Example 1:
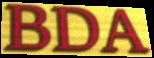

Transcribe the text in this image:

BDA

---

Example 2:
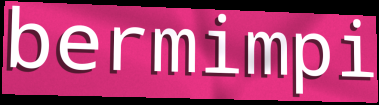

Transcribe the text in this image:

bermimpi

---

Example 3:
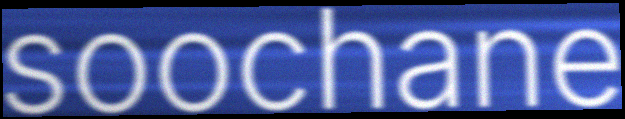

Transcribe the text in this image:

soochane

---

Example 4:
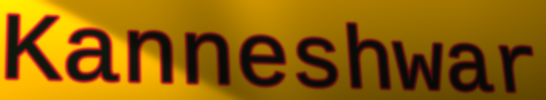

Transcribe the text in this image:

Kanneshwar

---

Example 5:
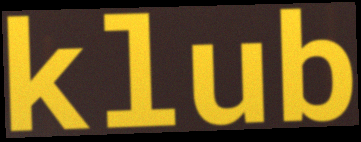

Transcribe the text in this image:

klub